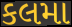
કલમા